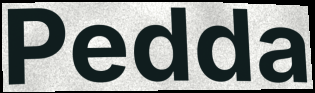
Pedda